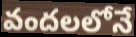
వందలలోనే